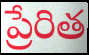
ప్రేరిత